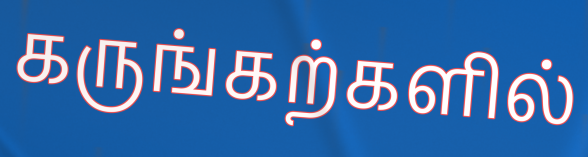
கருங்கற்களில்